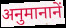
अनुमानानें